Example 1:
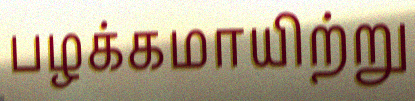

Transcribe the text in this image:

பழக்கமாயிற்று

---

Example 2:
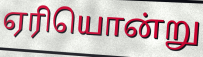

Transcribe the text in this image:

ஏரியொன்று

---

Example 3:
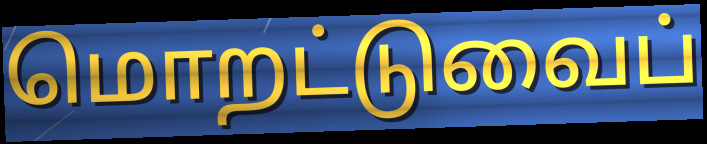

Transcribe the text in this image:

மொறட்டுவைப்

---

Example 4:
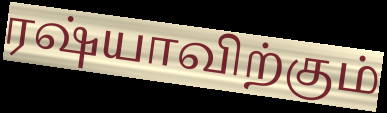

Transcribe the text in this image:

ரஷ்யாவிற்கும்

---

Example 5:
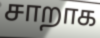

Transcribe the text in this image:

சாறாக